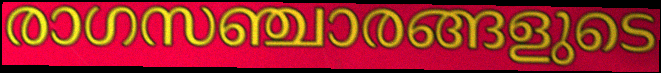
രാഗസഞ്ചാരങ്ങളുടെ